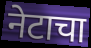
नेटाचा